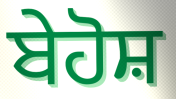
ਬੇਹੋਸ਼